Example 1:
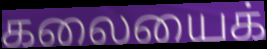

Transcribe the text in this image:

கலையைக்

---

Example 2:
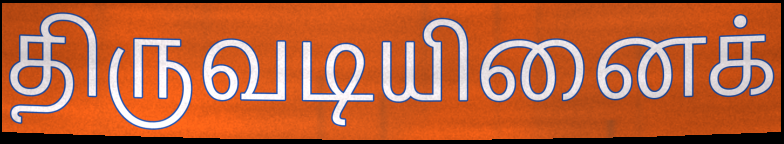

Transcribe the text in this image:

திருவடியினைக்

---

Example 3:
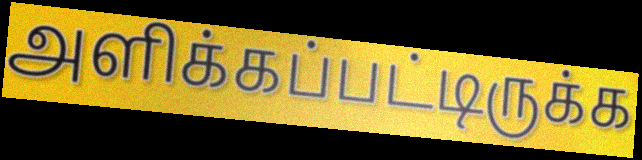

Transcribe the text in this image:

அளிக்கப்பட்டிருக்க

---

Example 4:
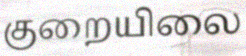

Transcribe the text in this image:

குறையிலை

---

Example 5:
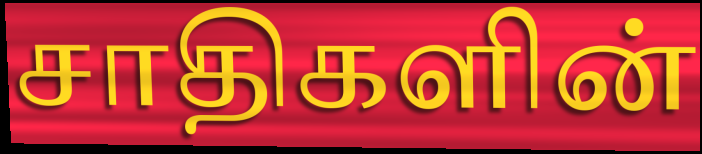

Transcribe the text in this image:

சாதிகளின்